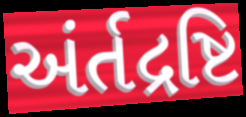
અંર્તદ્રષ્ટિ